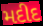
મદીદ